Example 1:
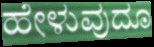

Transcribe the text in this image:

ಹೇಳುವುದೂ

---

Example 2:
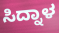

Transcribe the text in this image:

ಸಿದ್ನಾಳ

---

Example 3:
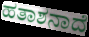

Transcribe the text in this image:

ಹತಾಶನಾದೆ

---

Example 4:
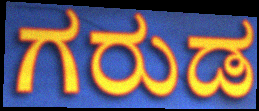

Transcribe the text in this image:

ಗರುಡ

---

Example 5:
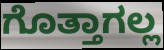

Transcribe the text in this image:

ಗೊತ್ತಾಗಲ್ಲ